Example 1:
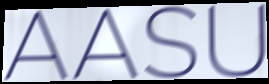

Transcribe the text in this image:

AASU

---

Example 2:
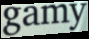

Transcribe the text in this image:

gamy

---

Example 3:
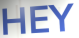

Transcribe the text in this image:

HEY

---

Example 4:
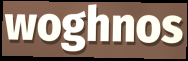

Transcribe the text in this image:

woghnos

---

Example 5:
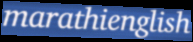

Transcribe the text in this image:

marathienglish